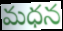
మధన